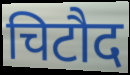
चिटौद